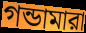
গন্ডামারা